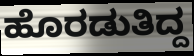
ಹೊರಡುತಿದ್ದ